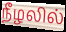
நீழலில்